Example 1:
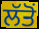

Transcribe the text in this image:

ਲੱਤੋਂ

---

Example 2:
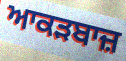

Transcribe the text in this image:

ਆਕੜਬਾਜ਼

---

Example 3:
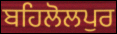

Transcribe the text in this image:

ਬਹਿਲੋਲਪੁਰ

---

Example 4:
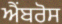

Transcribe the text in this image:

ਐਂਬਰੋਸ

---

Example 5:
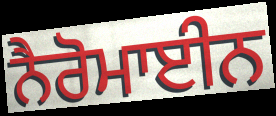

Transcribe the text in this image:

ਨੈਰੋਮਾਈਨ